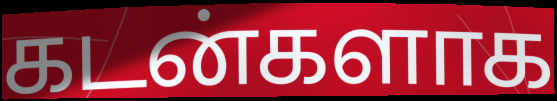
கடன்களாக